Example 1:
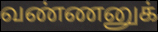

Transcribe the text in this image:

வண்ணனுக்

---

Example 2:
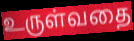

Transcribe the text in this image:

உருள்வதை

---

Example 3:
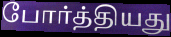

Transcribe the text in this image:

போர்த்தியது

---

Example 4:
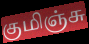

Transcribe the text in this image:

குமிஞ்சு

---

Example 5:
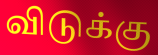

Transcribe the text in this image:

விடுக்கு